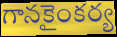
గానకైంకర్య